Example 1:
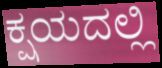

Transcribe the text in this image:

ಕ್ಷಯದಲ್ಲಿ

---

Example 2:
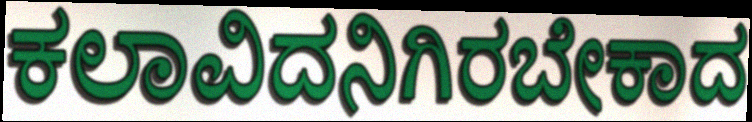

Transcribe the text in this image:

ಕಲಾವಿದನಿಗಿರಬೇಕಾದ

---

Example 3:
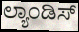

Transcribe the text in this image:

ಲ್ಯಾಂಡಿಸ್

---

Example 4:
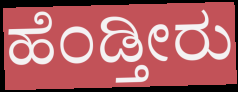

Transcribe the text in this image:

ಹೆಂಡ್ತೀರು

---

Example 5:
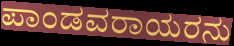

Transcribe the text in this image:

ಪಾಂಡವರಾಯರನು